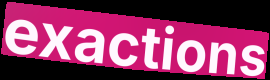
exactions